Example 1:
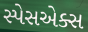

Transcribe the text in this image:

સ્પેસએક્સ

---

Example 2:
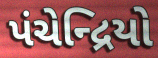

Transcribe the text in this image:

પંચેન્દ્રિયો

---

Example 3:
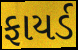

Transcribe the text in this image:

ફાયર્ડ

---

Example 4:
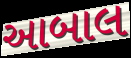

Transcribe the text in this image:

આબાલ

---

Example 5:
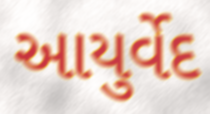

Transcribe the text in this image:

આયુર્વેદ